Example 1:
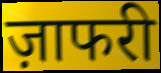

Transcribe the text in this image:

ज़ाफरी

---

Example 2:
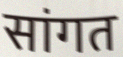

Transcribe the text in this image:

सांगत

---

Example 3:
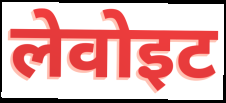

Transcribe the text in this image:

लेवोइट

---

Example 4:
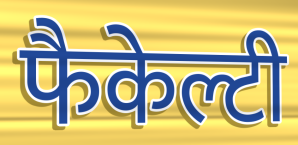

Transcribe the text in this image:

फैकेल्टी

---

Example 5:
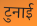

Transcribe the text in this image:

टुनाई